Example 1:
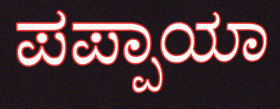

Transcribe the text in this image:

ಪಪ್ಪಾಯಾ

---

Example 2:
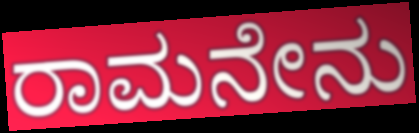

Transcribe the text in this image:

ರಾಮನೇನು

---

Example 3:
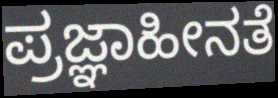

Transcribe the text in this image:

ಪ್ರಜ್ಞಾಹೀನತೆ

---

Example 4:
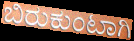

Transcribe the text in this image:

ಬಿರುಕುಂಟಾಗಿ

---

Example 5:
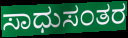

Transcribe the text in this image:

ಸಾಧುಸಂತರ